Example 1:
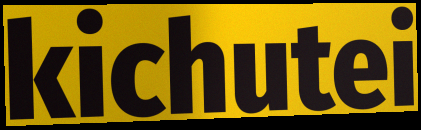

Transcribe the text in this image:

kichutei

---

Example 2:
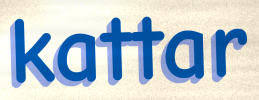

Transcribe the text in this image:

kattar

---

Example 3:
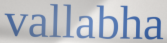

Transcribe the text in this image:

vallabha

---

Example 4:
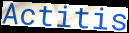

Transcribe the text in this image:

Actitis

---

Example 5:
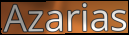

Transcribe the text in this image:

Azarias